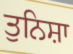
ਤੁਨਿਸ਼ਾ